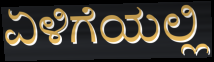
ಏಳಿಗೆಯಲ್ಲಿ